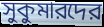
সুকুমারদের